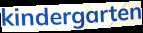
kindergarten